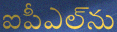
ఐపీఎల్‌ను